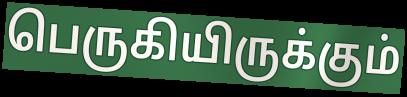
பெருகியிருக்கும்